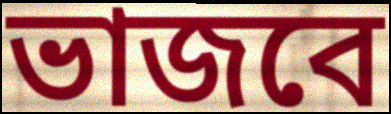
ভাজবে